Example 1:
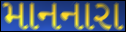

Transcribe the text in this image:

માનનારા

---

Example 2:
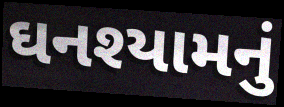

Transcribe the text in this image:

ઘનશ્યામનું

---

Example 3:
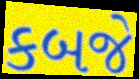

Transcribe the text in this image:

કબજે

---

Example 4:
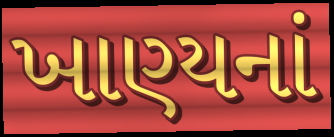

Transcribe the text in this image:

ખાણ્યનાં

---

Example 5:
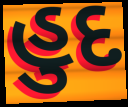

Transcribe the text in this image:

હુદ